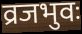
व्रजभुवः